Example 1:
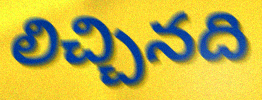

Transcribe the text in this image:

లిచ్చినది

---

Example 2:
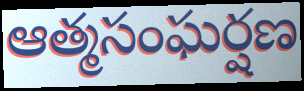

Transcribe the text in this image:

ఆత్మసంఘర్షణ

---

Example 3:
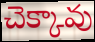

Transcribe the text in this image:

చెక్కావు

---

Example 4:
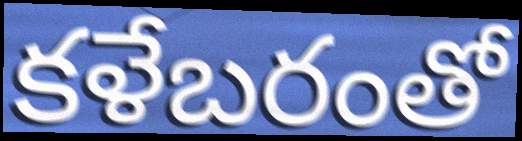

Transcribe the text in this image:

కళేబరంతో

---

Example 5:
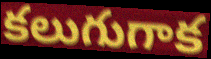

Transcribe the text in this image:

కలుగుగాక